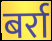
बर्रा